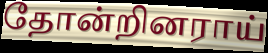
தோன்றினராய்